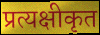
प्रत्यक्षीकृत